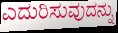
ಎದುರಿಸುವುದನ್ನು